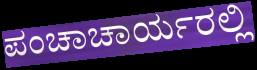
ಪಂಚಾಚಾರ್ಯರಲ್ಲಿ